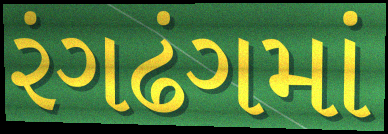
રંગઢંગમાં